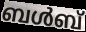
ബൾബ്